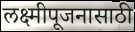
लक्ष्मीपूजनासाठी